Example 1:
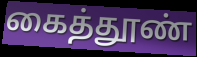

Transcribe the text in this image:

கைத்தூண்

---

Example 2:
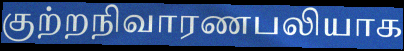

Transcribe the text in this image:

குற்றநிவாரணபலியாக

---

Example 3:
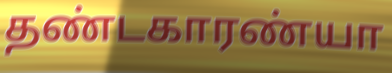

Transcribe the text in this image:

தண்டகாரண்யா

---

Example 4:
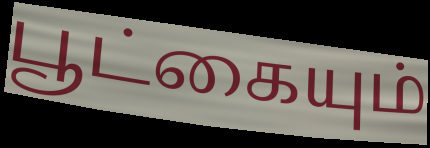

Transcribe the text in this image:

பூட்கையும்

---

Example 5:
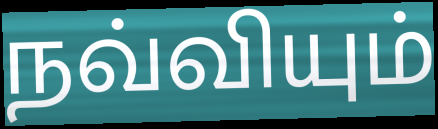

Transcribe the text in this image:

நவ்வியும்